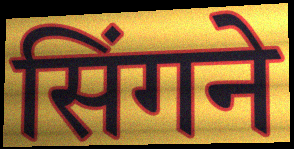
सिंगने